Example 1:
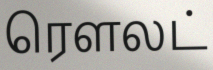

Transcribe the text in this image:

ரௌலட்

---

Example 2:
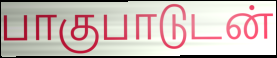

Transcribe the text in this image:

பாகுபாடுடன்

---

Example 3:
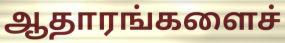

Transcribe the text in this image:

ஆதாரங்களைச்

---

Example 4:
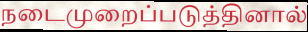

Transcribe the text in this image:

நடைமுறைப்படுத்தினால்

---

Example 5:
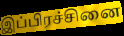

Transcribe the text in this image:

இப்பிரச்சினை